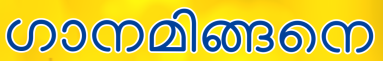
ഗാനമിങ്ങനെ